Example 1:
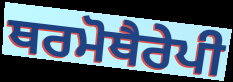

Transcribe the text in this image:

ਥਰਮੋਥੈਰੇਪੀ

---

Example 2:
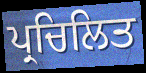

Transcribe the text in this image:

ਪ੍ਰਚਿਲਿਤ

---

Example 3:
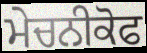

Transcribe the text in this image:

ਮੇਚਨੀਕੋਫ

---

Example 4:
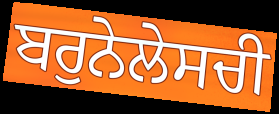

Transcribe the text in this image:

ਬਰੁਨੇਲੇਸਚੀ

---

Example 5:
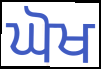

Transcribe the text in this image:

ਘੋਖ